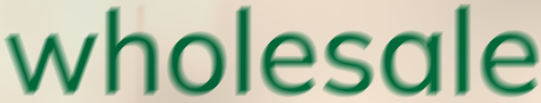
wholesale